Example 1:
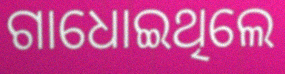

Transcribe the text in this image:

ଗାଧୋଇଥିଲେ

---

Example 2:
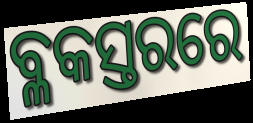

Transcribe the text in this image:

ବ୍ଳକସ୍ତରରେ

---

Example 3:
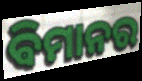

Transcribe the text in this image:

ଵିମାନର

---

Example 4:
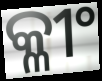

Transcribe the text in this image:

କ୍ଳୀଂ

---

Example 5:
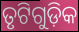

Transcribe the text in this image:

ତୃଟିଗୁଡ଼ିକ